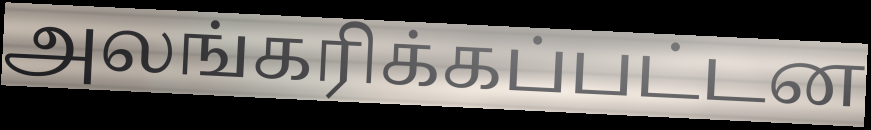
அலங்கரிக்கப்பட்டன